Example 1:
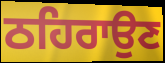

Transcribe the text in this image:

ਠਹਿਰਾਉਣ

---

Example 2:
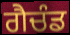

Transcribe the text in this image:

ਗੈਚੰਡ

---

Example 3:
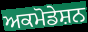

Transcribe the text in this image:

ਅਕਮੋਡੇਸ਼ਨ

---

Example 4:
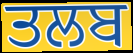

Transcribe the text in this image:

ਤਲਬ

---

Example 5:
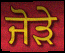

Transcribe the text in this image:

ਜੋੜੇ